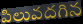
పిలువదగిన